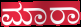
ಮಾರಾ